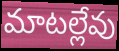
మాటల్లేవు